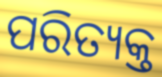
ପରିତ୍ଯକ୍ତ